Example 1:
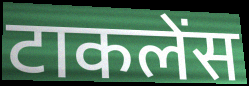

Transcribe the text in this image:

टाकलेंस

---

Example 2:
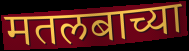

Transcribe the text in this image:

मतलबाच्या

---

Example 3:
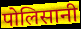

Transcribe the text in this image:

पोलिसानी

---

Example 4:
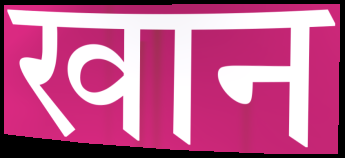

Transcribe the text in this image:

खान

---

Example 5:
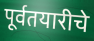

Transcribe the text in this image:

पूर्वतयारीचे